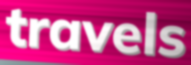
travels